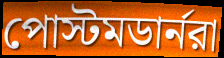
পোস্টমডার্নরা